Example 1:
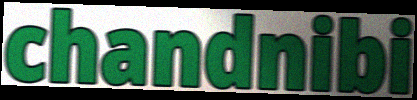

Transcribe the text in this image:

chandnibi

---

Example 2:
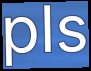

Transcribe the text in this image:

pls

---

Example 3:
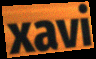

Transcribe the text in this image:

xavi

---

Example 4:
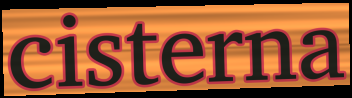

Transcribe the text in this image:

cisterna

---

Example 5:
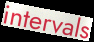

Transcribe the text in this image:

intervals